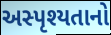
અસ્પૃશ્યતાનો